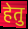
हेतु